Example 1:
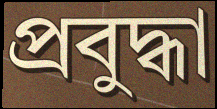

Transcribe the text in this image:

প্রবুদ্ধা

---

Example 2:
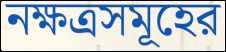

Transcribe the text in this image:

নক্ষত্রসমূহের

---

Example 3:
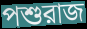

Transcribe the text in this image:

পশুরাজ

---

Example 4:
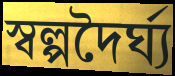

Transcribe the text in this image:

স্বল্পদৈর্ঘ্য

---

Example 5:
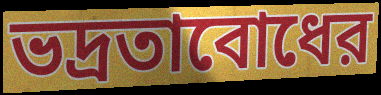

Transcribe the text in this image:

ভদ্রতাবোধের